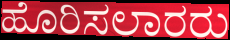
ಹೊರಿಸಲಾರರು